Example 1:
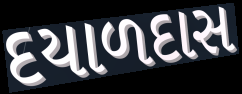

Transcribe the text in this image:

દયાળદાસ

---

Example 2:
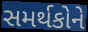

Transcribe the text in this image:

સમર્થકોને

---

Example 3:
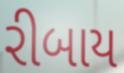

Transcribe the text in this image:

રીબાય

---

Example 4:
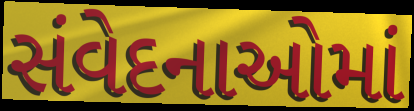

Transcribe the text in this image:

સંવેદનાઓમાં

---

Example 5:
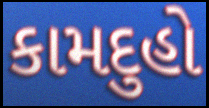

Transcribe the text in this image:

કામદુહો